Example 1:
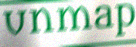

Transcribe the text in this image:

unmap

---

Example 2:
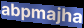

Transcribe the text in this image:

abpmajha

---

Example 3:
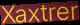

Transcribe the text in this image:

Xaxtrer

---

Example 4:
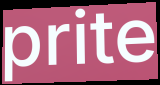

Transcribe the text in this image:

prite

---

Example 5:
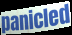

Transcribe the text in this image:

panicled